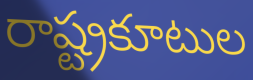
రాష్ట్రకూటుల